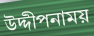
উদ্দীপনাময়